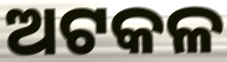
ଅଟକଳ